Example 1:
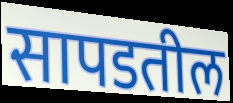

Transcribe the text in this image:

सापडतील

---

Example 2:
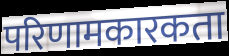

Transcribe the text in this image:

परिणामकारकता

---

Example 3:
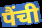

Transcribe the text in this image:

पैंची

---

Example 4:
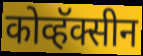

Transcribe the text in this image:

कोव्हॅक्सीन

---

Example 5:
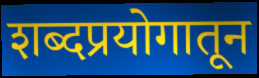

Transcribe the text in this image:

शब्दप्रयोगातून